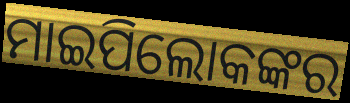
ମାଇପିଲୋକଙ୍କର